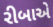
રીબાએ